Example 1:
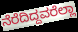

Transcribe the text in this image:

ನೆರೆದಿದ್ದವರೆಲ್ಲಾ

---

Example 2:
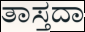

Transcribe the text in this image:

ತಾಸ್ತದಾ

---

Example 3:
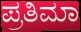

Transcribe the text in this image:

ಪ್ರತಿಮಾ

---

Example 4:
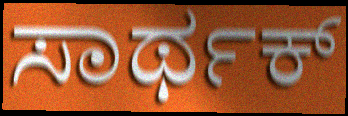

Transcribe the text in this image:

ಸಾರ್ಥಕ್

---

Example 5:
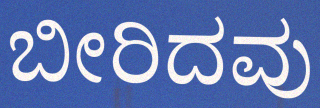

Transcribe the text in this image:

ಬೀರಿದವು